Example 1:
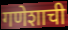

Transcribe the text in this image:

गणेशाची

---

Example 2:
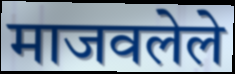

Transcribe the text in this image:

माजवलेले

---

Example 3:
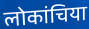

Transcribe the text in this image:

लोकांचिया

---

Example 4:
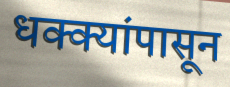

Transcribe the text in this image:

धक्क्यांपासून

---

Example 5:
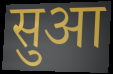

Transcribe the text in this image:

सुआ